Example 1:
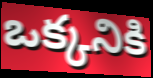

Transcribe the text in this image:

ఒక్కనికి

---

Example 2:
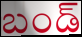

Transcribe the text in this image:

బండ్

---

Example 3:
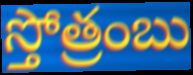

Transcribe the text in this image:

స్తోత్రంబు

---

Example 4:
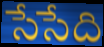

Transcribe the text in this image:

సేసేది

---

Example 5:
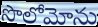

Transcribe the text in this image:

సొలోమోను